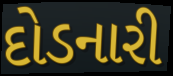
દોડનારી